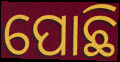
ପୋଛି